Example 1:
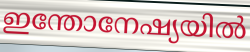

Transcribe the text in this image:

ഇന്തോനേഷ്യയിൽ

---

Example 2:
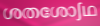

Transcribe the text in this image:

ശതശോഽഥ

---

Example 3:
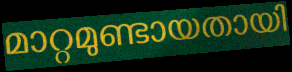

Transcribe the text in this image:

മാറ്റമുണ്ടായതായി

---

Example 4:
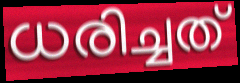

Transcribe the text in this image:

ധരിച്ചത്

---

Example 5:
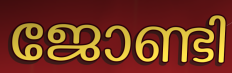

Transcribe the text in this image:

ജോണ്ടി